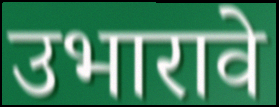
उभारावे